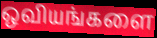
ஒவியங்களை